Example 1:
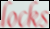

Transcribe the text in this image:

locks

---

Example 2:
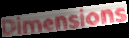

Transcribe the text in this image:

Dimensions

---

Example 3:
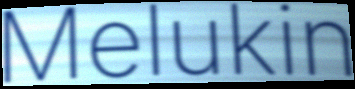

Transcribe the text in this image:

Melukin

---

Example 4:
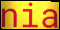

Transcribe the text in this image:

nia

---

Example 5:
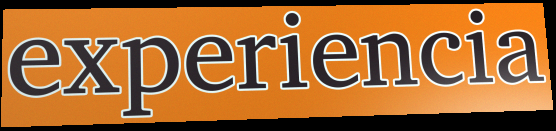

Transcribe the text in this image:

experiencia